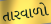
તારવાળો